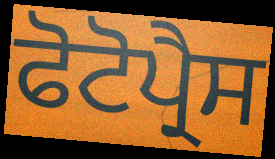
ਫੋਟੋਪ੍ਰੈਸ